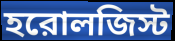
হরোলজিস্ট